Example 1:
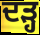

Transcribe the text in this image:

ਦੜ੍ਹ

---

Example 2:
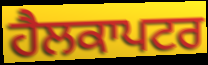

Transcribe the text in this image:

ਹੈਲਕਾਪਟਰ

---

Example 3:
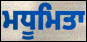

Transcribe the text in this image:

ਮਧੂਮਿਤਾ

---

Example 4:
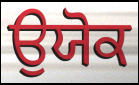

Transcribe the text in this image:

ਉਯੋਕ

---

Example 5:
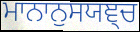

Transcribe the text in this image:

ਮਾਨਾਨੁਸਯਞ੍ਚ